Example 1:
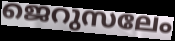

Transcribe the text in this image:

ജെറുസലേം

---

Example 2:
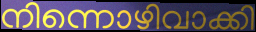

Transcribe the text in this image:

നിന്നൊഴിവാക്കി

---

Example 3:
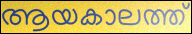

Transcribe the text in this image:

ആയകാലത്ത്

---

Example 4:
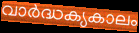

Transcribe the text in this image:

വാർദ്ധക്യകാലം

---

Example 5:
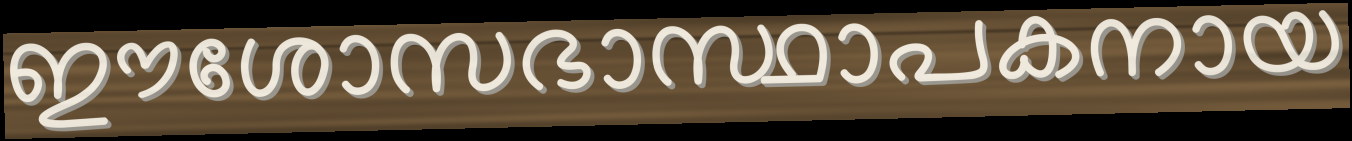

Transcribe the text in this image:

ഈശോസഭാസ്ഥാപകനായ